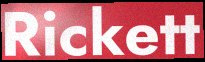
Rickett